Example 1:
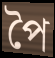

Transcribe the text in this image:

পৈ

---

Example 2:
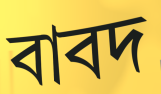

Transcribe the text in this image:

বাবদ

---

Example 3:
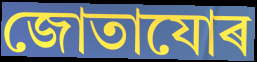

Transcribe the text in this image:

জোতাযোৰ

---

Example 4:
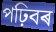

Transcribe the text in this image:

পঢ়িবৰ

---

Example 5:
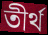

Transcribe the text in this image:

তীৰ্থ